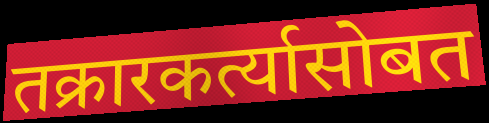
तक्रारकर्त्यासोबत